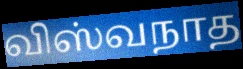
விஸ்வநாத